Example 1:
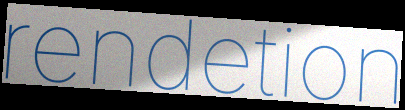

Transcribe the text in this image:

rendetion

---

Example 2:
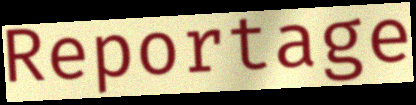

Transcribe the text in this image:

Reportage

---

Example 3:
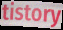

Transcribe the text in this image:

tistory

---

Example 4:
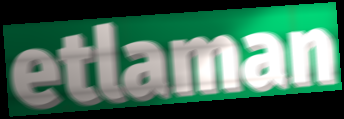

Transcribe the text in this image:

etlaman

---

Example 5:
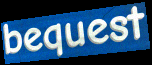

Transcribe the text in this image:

bequest